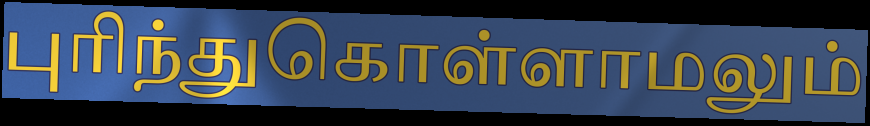
புரிந்துகொள்ளாமலும்